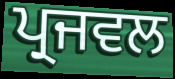
ਪ੍ਰਜਵਲ